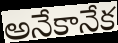
అనేకానేక